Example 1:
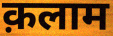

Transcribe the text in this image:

क़लाम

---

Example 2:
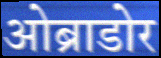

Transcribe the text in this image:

ओब्राडोर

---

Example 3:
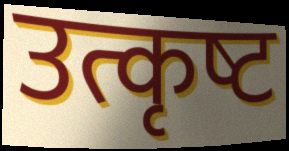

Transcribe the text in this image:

उत्‍कृष्‍ट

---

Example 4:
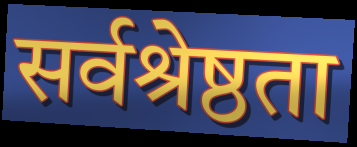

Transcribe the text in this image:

सर्वश्रेष्ठता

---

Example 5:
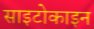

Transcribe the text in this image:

साइटोकाइन